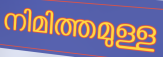
നിമിത്തമുള്ള